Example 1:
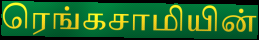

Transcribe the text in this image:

ரெங்கசாமியின்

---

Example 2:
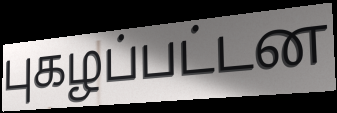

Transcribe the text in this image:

புகழப்பட்டன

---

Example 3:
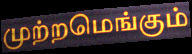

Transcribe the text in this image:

முற்றமெங்கும்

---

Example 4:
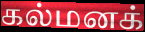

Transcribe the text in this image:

கல்மனக்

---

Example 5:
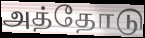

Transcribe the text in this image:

அத்தோடு